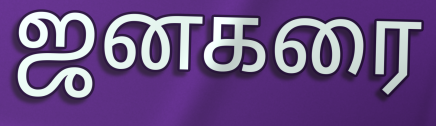
ஜனகரை